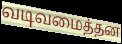
வடிவமைத்தன